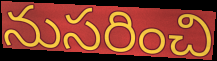
నుసరించి